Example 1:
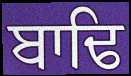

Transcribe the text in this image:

ਬਾਢਿ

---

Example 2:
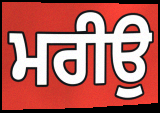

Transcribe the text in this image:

ਮਰੀਉ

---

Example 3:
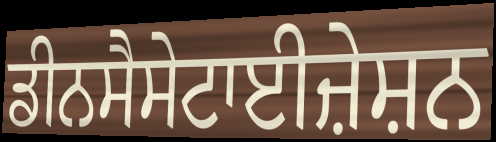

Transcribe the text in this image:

ਡੀਨਸੈਸੇਟਾਈਜ਼ੇਸ਼ਨ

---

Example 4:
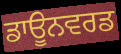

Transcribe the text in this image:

ਡਾਊਨਵਰਡ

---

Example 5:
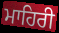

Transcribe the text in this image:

ਮਾਹਿਰੀ